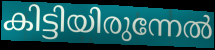
കിട്ടിയിരുന്നേൽ